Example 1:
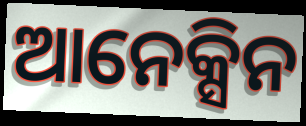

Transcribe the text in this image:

ଆନେକ୍ସିନ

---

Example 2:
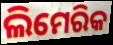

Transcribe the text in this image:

ଲିମେରିକ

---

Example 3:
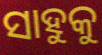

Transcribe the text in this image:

ସାହୁକୁ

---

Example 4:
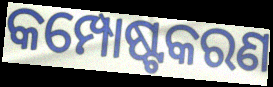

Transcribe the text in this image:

କମ୍ପୋଷ୍ଟକରଣ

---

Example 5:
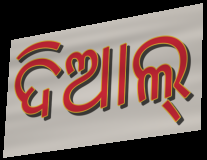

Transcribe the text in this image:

ଦିଆଲ୍